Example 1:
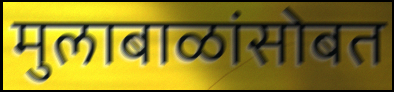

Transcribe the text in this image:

मुलाबाळांसोबत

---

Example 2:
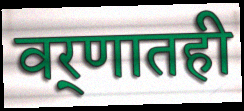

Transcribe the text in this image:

वर्णातही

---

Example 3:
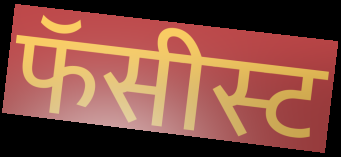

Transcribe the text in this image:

फॅसीस्ट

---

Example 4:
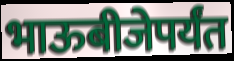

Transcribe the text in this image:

भाऊबीजेपर्यंत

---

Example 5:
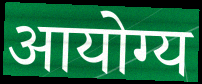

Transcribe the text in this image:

आयोग्य